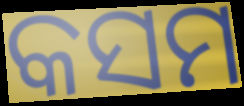
କସମ